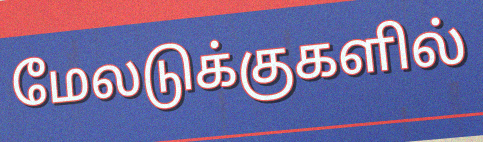
மேலடுக்குகளில்